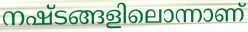
നഷ്ടങ്ങളിലൊന്നാണ്